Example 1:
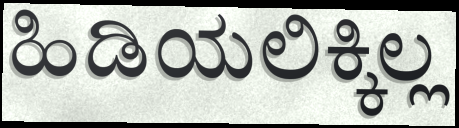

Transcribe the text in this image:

ಹಿಡಿಯಲಿಕ್ಕಿಲ್ಲ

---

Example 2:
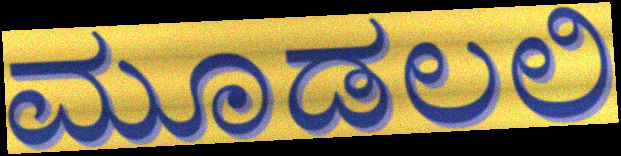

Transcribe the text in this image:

ಮೂಡಲಲಿ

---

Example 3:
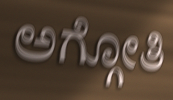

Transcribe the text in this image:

ಅಗ್ಗೋತಿ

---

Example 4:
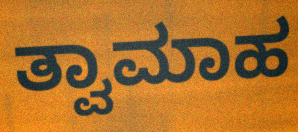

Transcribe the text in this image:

ತ್ವಾಮಾಹ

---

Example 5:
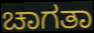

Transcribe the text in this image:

ಚಾಗತಾ